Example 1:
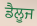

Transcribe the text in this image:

ਡੈਲੂਜ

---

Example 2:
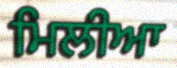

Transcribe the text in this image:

ਮਿਲੀਆ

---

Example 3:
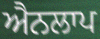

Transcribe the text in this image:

ਐਨਲਾਪ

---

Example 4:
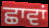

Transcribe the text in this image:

ਛਾਵਾਂ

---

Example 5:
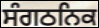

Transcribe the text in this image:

ਸੰਗਠਨਿਕ